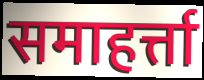
समाहर्त्ता